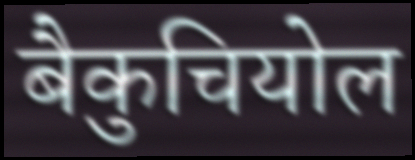
बैकुचियोल